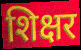
शिक्षर